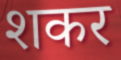
शकर